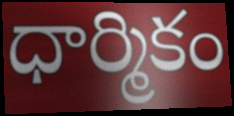
ధార్మికం